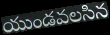
యుండవలసిన